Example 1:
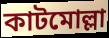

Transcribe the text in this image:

কাটমোল্লা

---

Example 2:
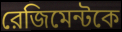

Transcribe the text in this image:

রেজিমেন্টকে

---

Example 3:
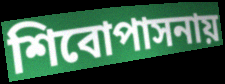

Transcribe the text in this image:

শিবোপাসনায়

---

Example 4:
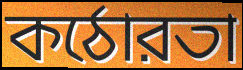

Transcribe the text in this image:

কঠোরতা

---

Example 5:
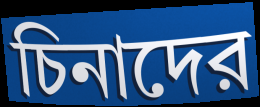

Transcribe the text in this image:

চিনাদের